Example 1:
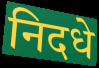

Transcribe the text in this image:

निदधे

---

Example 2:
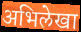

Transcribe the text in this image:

अभिलेखा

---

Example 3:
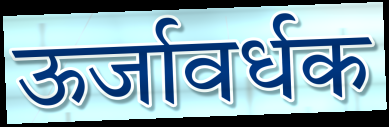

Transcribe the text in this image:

ऊर्जावर्धक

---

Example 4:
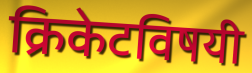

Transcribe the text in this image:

क्रिकेटविषयी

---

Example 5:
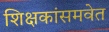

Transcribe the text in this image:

शिक्षकांसमवेत